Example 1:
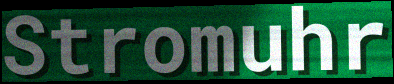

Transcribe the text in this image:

Stromuhr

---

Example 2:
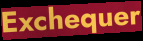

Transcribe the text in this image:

Exchequer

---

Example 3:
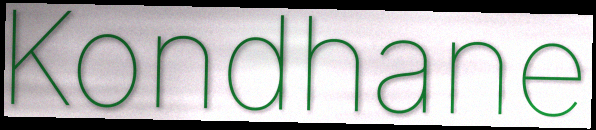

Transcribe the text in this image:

Kondhane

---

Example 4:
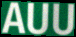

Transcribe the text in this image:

AUU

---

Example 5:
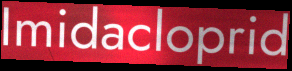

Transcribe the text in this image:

Imidacloprid